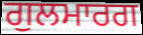
ਗੁਲਮਾਰਗ